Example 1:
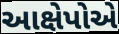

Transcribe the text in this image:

આક્ષેપોએ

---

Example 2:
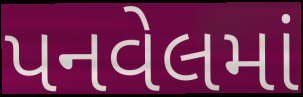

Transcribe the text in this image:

પનવેલમાં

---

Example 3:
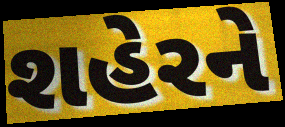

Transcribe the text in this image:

શહેરને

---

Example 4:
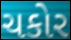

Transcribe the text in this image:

ચકોર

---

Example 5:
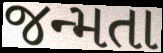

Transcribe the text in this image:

જન્મતા